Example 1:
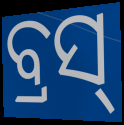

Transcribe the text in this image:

ବ୍ରସ୍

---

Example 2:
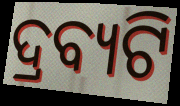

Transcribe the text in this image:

ଦ୍ରବ୍ୟଟି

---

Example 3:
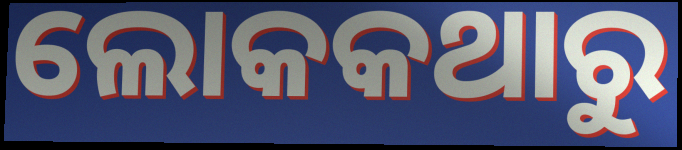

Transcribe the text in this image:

ଲୋକକଥାରୁ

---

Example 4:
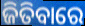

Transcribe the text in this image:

ଜିତିବାରେ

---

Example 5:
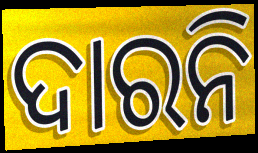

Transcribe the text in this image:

ଦାରନି